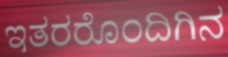
ಇತರರೊಂದಿಗಿನ